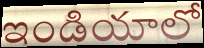
ఇండియాలో